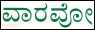
ವಾರವೋ